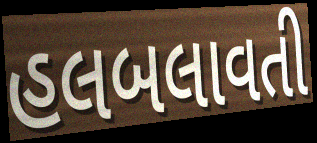
હલબલાવતી